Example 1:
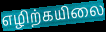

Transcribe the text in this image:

எழிற்கயிலை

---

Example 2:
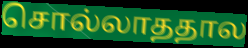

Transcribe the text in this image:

சொல்லாததால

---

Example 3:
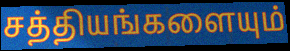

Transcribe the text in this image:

சத்தியங்களையும்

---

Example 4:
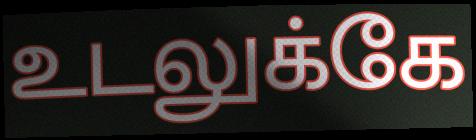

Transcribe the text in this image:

உடலுக்கே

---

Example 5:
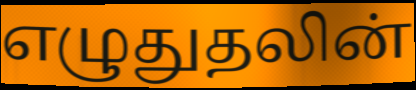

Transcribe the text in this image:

எழுதுதலின்